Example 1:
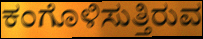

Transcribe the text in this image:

ಕಂಗೊಳಿಸುತ್ತಿರುವ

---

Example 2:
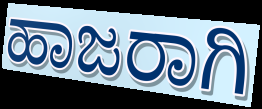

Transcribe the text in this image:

ಹಾಜರಾಗಿ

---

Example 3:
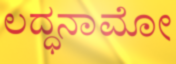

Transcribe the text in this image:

ಲದ್ಧನಾಮೋ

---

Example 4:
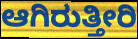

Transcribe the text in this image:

ಆಗಿರುತ್ತೀರಿ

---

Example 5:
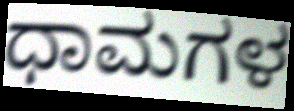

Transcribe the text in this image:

ಧಾಮಗಳ